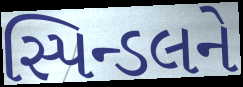
સ્પિન્ડલને